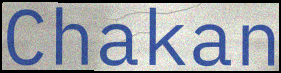
Chakan